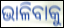
ଭାଳିବାକୁ